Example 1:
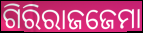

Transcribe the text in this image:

ଗିରିରାଜଜେମା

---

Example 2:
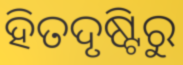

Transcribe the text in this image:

ହିତଦୃଷ୍ଟିରୁ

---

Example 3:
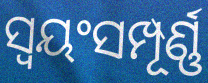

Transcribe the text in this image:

ସ୍ବୟଂସମ୍ପୂର୍ଣ୍ଣ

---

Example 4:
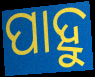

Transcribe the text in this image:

ପାହୁ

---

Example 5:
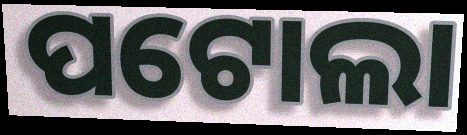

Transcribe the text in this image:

ପଟୋଲା